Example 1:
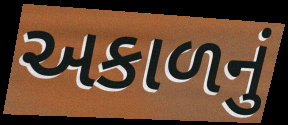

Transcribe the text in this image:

અકાળનું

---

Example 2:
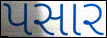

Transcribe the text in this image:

પસાર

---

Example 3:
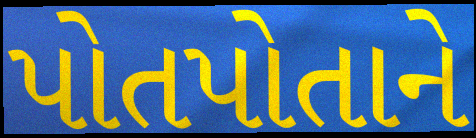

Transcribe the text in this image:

પોતપોતાને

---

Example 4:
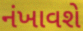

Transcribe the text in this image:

નંખાવશે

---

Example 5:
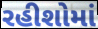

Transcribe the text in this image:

રહીશોમાં